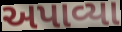
અપાવ્યા